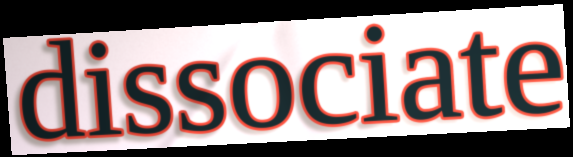
dissociate